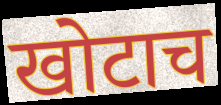
खोटाच